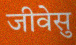
जीवेसु